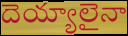
దెయ్యాలైనా